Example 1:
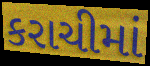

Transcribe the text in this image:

કરાચીમાં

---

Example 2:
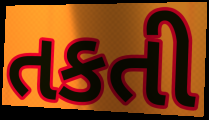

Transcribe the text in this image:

તકતી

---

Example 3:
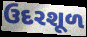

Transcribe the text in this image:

ઉદરશૂળ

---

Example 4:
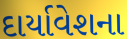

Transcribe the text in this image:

દાર્યાવેશના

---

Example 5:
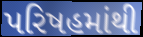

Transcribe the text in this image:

પરિષહમાંથી